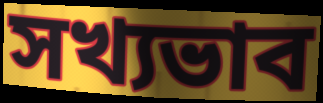
সখ্যভাব